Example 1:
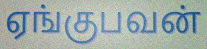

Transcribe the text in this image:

ஏங்குபவன்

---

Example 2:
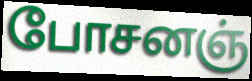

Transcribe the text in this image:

போசனஞ்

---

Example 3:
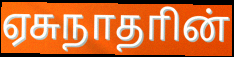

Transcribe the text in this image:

ஏசுநாதரின்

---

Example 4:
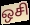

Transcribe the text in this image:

ஒசி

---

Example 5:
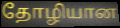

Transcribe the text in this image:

தோழியான